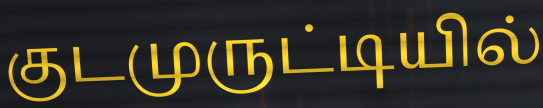
குடமுருட்டியில்